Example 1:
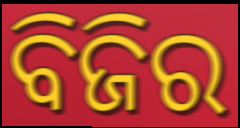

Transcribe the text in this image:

ବିଜିର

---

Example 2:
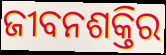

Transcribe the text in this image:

ଜୀବନଶକ୍ତିର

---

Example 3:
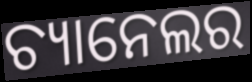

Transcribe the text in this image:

ଚ୍ୟାନେଲର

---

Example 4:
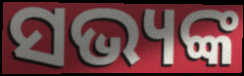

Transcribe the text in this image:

ସଭ୍ୟଙ୍କ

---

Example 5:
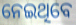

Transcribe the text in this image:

ନେଇଥିବେ